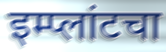
इम्प्लांटचा